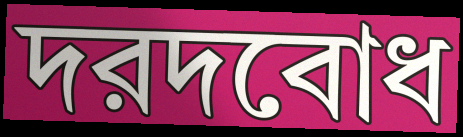
দরদবোধ